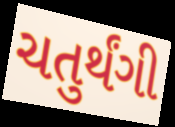
ચતુર્થંગી